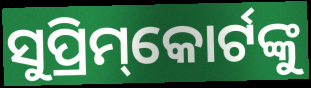
ସୁପ୍ରିମ୍‌କୋର୍ଟଙ୍କୁ